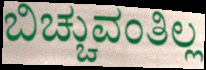
ಬಿಚ್ಚುವಂತಿಲ್ಲ